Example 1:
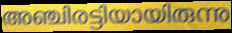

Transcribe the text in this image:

അഞ്ചിരട്ടിയായിരുന്നു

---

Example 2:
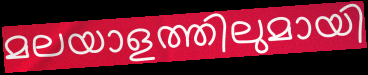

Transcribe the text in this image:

മലയാളത്തിലുമായി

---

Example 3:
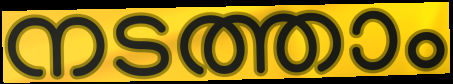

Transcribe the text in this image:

നടത്താം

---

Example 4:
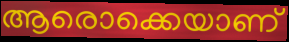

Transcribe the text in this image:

ആരൊക്കെയാണ്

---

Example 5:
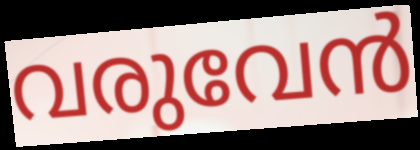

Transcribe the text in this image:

വരുവേൻ